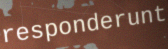
responderunt